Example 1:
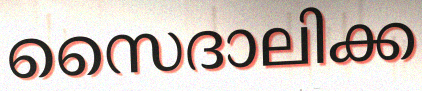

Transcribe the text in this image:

സൈദാലിക്ക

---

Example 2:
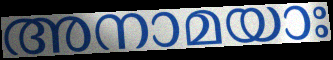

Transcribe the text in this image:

അനാമയാഃ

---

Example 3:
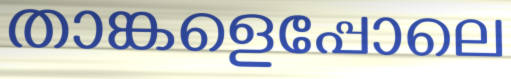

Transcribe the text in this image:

താങ്കളെപ്പോലെ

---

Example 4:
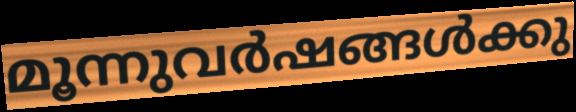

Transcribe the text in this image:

മൂന്നുവർഷങ്ങൾക്കു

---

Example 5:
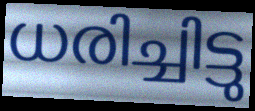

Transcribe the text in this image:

ധരിച്ചിട്ടു